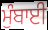
ਮੁੰਬਾਈ